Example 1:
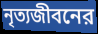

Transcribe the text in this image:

নৃত্যজীবনের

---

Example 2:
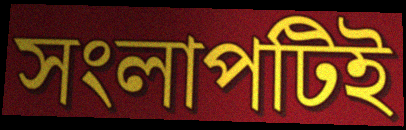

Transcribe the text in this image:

সংলাপটিই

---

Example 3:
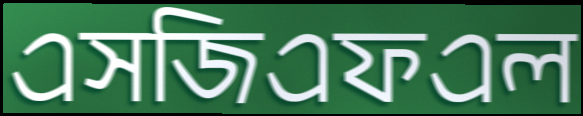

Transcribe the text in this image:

এসজিএফএল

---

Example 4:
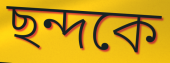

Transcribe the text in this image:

ছন্দকে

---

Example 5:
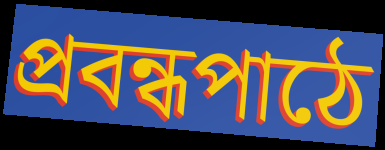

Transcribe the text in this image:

প্রবন্ধপাঠে